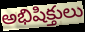
అభిషిక్తులు